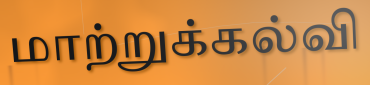
மாற்றுக்கல்வி